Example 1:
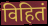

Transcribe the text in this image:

विहितं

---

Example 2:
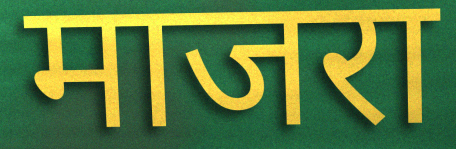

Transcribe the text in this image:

माजरा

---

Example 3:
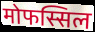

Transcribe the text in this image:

मोफस्सिल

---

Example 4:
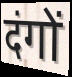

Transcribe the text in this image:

दंगों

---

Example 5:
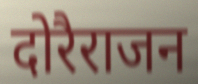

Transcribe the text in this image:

दोरैराजन